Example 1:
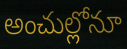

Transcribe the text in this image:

అంచుల్లోనూ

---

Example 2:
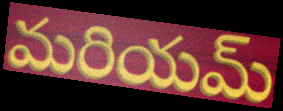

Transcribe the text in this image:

మరియమ్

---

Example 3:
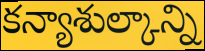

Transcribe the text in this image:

కన్యాశుల్కాన్ని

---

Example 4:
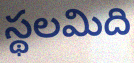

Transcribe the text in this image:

స్థలమిది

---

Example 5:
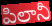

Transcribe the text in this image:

పిలానీ